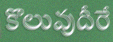
కొలువుదీరే